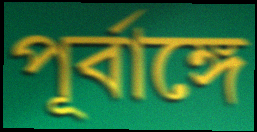
পূর্বাঙ্গে